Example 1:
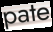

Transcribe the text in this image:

pate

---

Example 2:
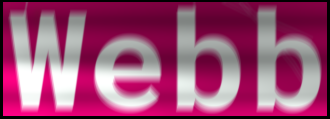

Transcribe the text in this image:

Webb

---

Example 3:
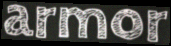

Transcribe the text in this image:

armor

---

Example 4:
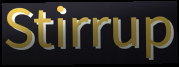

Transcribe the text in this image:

Stirrup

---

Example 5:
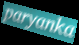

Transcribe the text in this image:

paryanka